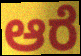
ಆರೆ